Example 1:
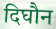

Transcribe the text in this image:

दिघौन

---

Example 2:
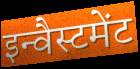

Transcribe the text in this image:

इन्वैस्टमेंट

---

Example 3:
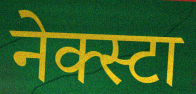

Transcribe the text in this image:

नेक्स्टा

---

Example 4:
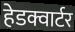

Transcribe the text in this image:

हेडक्वार्टर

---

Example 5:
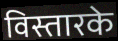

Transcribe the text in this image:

विस्तारके